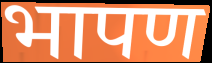
भापण